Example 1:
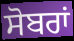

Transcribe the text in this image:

ਸੋਬਰਾਂ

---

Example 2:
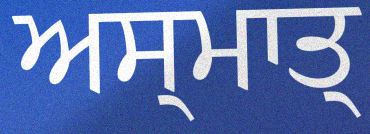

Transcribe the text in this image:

ਅਸ੍ਮਾਤ੍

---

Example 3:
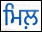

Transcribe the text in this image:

ਮਿਲ਼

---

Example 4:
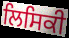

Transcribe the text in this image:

ਲਿਸਿਕੀ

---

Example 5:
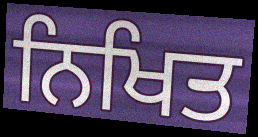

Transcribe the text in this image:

ਨਿਖਿਤ